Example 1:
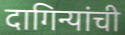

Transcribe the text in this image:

दागिन्यांची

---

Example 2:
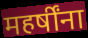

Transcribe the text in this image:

महर्षींना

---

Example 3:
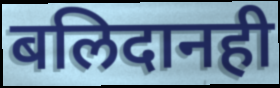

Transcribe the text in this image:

बलिदानही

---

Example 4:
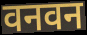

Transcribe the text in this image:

वनवन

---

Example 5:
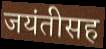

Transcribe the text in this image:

जयंतीसह